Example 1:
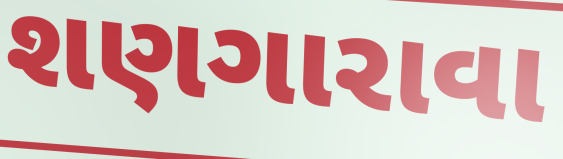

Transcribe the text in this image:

શણગારાવા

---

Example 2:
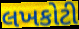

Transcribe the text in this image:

લખકોટી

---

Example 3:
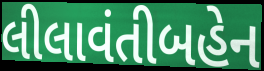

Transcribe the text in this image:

લીલાવંતીબહેન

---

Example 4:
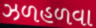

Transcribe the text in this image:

ઝળહળવા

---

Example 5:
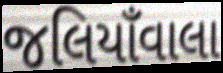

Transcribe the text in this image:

જલિયાઁવાલા